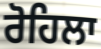
ਰੋਹਿਲਾ